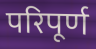
परिपूर्ण